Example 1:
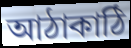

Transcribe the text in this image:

আঠাকাঠি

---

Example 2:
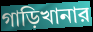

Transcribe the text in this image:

গাড়িখানার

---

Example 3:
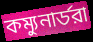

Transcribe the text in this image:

কম্যুনার্ডরা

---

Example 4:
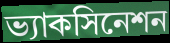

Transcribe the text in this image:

ভ্যাকসিনেশন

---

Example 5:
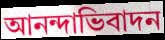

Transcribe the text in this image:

আনন্দাভিবাদন